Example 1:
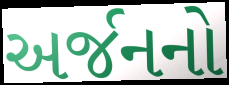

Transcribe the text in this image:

અર્જનનો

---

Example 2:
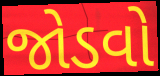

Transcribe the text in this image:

જોડવો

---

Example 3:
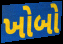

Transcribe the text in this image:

ખોબો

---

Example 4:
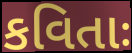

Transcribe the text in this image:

કવિતાઃ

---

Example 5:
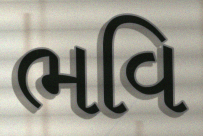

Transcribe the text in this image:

ભવિ